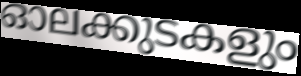
ഓലക്കുടകളും